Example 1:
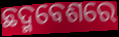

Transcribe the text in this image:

ଛଦ୍ମବେଶରେ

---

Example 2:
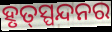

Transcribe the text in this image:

ହୃତ୍‌ସ୍ପନ୍ଦନର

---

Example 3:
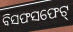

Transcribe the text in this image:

ବିସଫସଫେଟ୍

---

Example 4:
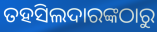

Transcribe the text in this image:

ତହସିଲଦାରଙ୍କଠାରୁ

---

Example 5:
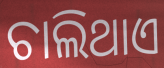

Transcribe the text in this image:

ଚାଲିଥାଏ